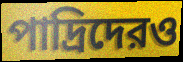
পাদ্রিদেরও